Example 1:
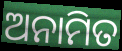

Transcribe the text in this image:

ଅନାମିତ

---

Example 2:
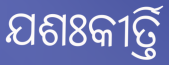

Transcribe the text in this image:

ଯଶଃକୀର୍ତ୍ତି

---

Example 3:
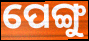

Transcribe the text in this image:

ପେଙ୍ଗୁ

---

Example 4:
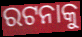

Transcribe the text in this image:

ରଟନାକୁ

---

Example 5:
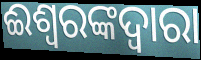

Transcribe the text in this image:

ଈଶ୍ୱରଙ୍କଦ୍ୱାରା